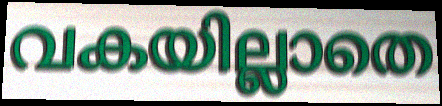
വകയില്ലാതെ